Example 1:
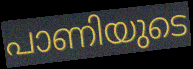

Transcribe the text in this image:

പാണിയുടെ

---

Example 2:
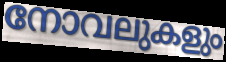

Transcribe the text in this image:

നോവലുകളും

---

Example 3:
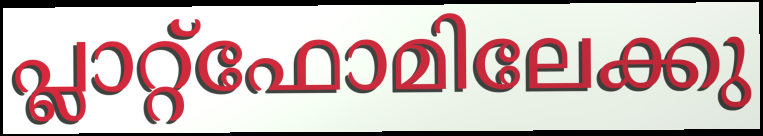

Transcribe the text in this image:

പ്ലാറ്റ്ഫോമിലേക്കു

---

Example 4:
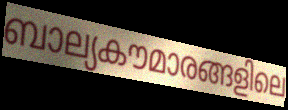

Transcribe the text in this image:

ബാല്യകൗമാരങ്ങളിലെ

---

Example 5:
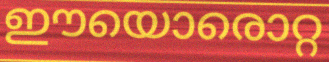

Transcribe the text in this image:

ഈയൊരൊറ്റ